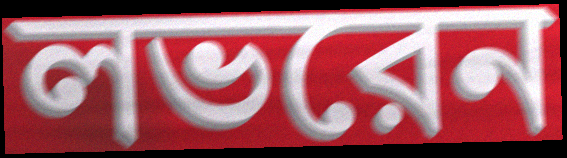
লভরেন